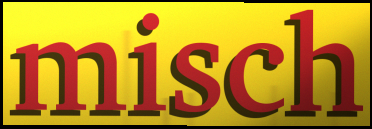
misch